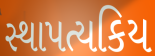
સ્થાપત્યકિય